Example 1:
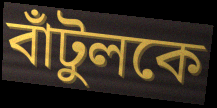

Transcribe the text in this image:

বাঁটুলকে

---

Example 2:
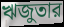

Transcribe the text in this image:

ঋজুতার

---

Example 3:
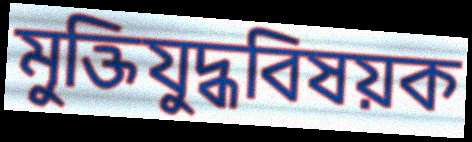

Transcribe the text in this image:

মুক্তিযুদ্ধবিষয়ক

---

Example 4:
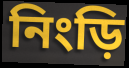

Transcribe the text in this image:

নিংড়ি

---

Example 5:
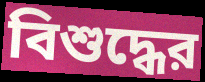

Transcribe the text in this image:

বিশুদ্ধের